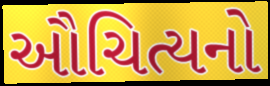
ઔચિત્યનો